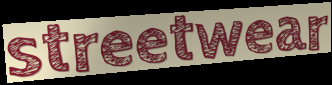
streetwear